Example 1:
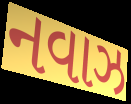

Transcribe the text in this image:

નવાઝ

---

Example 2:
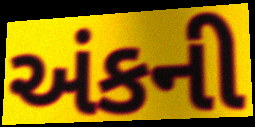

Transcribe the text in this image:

અંકની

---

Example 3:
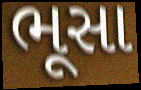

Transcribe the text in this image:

ભૂસા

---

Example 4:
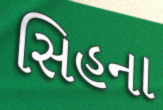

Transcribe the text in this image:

સિહના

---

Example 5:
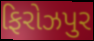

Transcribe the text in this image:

ફિરોઝપુર